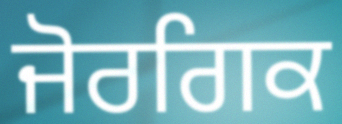
ਜੋਰਗਿਕ